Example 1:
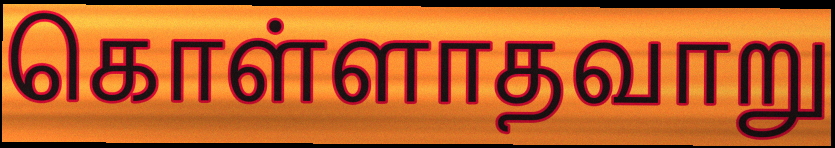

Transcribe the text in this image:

கொள்ளாதவாறு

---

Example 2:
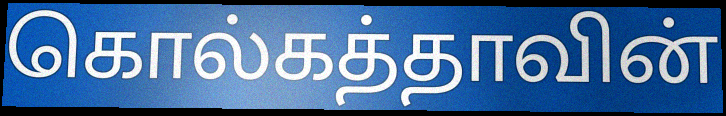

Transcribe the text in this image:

கொல்கத்தாவின்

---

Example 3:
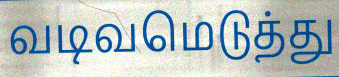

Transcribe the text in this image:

வடிவமெடுத்து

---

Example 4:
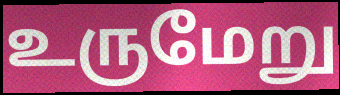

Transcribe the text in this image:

உருமேறு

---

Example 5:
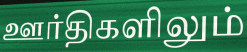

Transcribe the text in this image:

ஊர்திகளிலும்